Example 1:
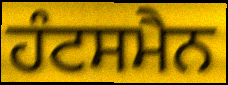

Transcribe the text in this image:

ਹੰਟਸਮੈਨ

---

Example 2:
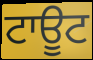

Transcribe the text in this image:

ਟਾਊਟ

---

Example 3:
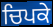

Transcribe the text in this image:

ਚਿਪਕੇ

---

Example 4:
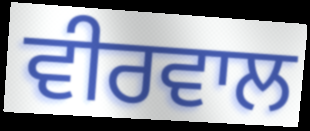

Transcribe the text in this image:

ਵੀਰਵਾਲ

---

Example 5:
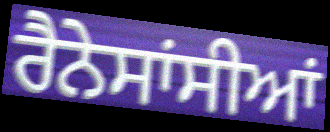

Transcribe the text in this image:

ਰੈਨੇਸਾਂਸੀਆਂ